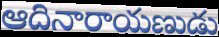
ఆదినారాయణుడు